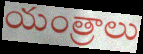
యంత్రాలు